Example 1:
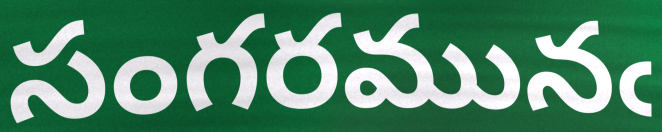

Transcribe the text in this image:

సంగరమునఁ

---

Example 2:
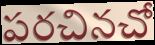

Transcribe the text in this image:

పరచినచో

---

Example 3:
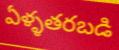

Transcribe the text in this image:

ఏళ్ళతరబడి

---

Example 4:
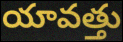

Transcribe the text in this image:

యావత్తు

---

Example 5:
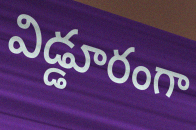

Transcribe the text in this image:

విడ్డూరంగా